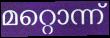
മറ്റൊന്ന്